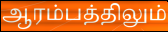
ஆரம்பத்திலும்